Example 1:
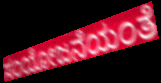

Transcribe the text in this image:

ಸಂಯೋಜನೆಯಂತೆ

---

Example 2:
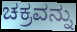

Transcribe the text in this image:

ಚಕ್ರವನ್ನು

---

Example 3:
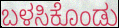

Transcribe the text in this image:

ಬಳಸಿಕೊಂಡು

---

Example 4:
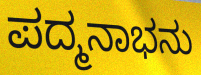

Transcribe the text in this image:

ಪದ್ಮನಾಭನು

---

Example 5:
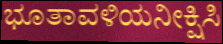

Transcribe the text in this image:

ಭೂತಾವಳಿಯನೀಕ್ಷಿಸಿ